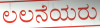
ಲಲನೆಯರು